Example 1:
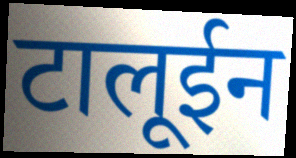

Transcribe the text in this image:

टालूईन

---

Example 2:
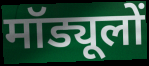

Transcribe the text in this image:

मॉड्यूलों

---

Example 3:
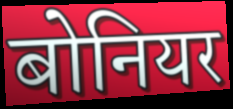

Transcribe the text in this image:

बोनियर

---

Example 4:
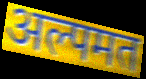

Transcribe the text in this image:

अल्पमत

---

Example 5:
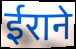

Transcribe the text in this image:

ईराने